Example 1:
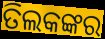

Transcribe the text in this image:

ତିଲକଙ୍କର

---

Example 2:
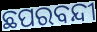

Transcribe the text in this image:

ଛପରବନ୍ଦୀ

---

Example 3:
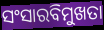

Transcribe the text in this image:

ସଂସାରବିମୁଖତା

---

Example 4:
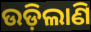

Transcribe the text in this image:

ଉଡ଼ିଲାଣି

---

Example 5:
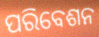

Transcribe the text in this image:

ପରିବେଶନ